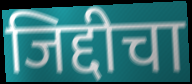
जिद्दीचा